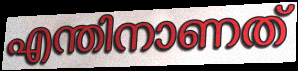
എന്തിനാണത്